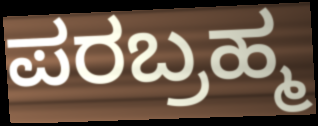
ಪರಬ್ರಹ್ಮ